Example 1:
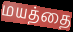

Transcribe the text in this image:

மயத்தை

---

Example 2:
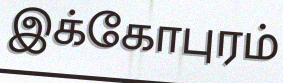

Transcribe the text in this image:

இக்கோபுரம்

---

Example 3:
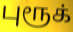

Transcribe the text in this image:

புரூக்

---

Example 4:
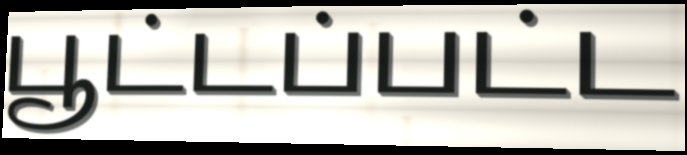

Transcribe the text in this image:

பூட்டப்பட்ட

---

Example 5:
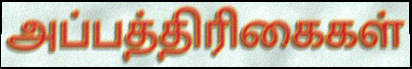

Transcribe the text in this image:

அப்பத்திரிகைகள்